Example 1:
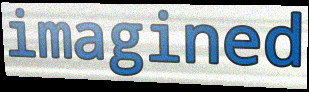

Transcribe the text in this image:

imagined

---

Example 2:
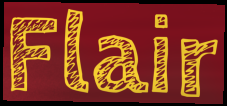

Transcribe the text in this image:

Flair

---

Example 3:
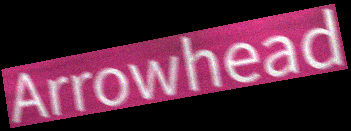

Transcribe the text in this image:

Arrowhead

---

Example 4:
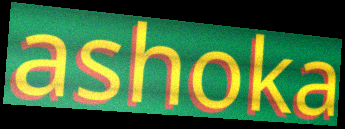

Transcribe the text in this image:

ashoka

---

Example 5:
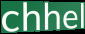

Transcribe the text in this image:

chhel